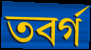
তবর্গ